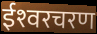
ईश्वरचरण